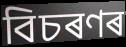
বিচৰণৰ